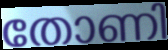
തോണി